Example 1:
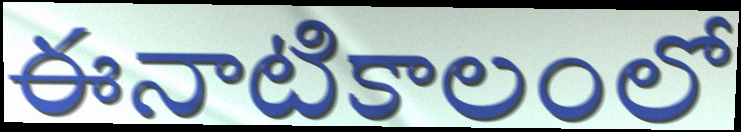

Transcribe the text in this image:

ఈనాటికాలంలో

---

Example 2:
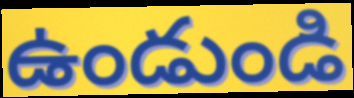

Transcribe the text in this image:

ఉండుండి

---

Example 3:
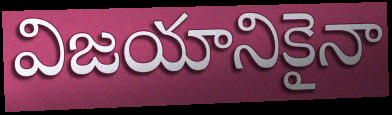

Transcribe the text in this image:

విజయానికైనా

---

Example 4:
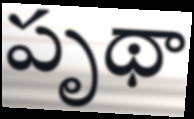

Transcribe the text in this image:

పృథా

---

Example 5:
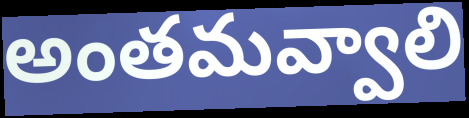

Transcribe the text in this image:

అంతమవ్వాలి